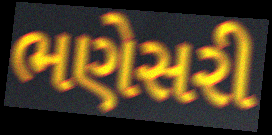
ભણેસરી